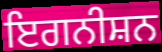
ਇਗਨੀਸ਼ਨ